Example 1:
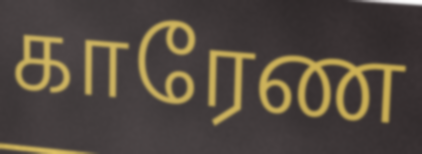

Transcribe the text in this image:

காரேண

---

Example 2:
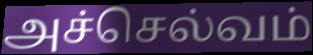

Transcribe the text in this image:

அச்செல்வம்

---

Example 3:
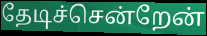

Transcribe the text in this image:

தேடிச்சென்றேன்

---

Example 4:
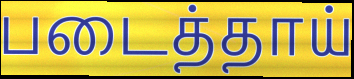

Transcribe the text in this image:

படைத்தாய்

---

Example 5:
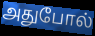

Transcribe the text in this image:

அதுபோல்